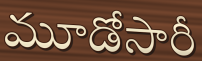
మూడోసారీ